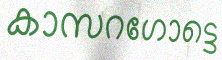
കാസറഗോട്ടെ